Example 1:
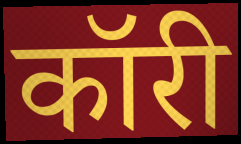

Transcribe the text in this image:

कॉरी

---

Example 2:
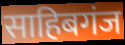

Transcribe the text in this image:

साहिबगंज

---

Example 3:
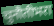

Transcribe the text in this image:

चुनौतीभरा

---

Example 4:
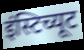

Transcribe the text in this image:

इंस्टिच्यूट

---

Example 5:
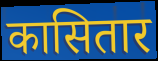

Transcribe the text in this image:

कासितार